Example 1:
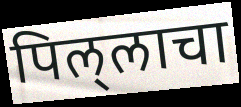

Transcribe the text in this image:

पिल्लाचा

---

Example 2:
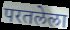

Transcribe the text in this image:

परतलेला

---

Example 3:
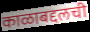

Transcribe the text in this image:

काळाबद्दलची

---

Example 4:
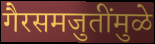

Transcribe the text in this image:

गैरसमजुतींमुळे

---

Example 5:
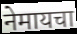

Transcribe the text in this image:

नेमायचा